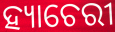
ହ୍ୟାଚେରୀ